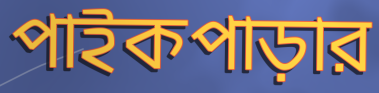
পাইকপাড়ার